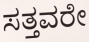
ಸತ್ತವರೇ